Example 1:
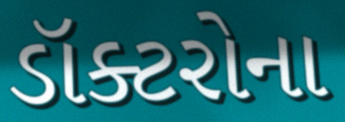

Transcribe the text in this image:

ડૉક્ટરોના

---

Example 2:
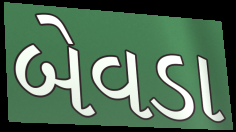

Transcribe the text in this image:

બેવડા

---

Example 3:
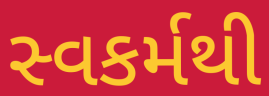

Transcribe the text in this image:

સ્વકર્મથી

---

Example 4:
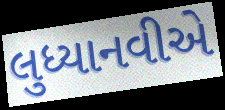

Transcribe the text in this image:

લુધ્યાનવીએ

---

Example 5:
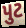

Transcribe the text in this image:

પુટ